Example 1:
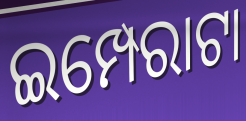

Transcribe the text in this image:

ଇମ୍ପେରାଟା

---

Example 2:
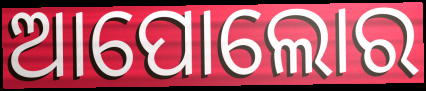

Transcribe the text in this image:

ଆପୋଲୋର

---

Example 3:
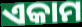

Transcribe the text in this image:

ଏକାମ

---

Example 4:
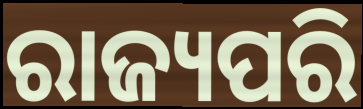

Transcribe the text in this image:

ରାଜ୍ୟପରି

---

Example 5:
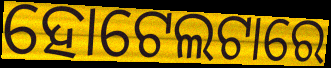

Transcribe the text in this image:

ହୋଟେଲଟାରେ